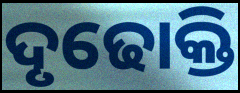
ଦୃଢୋକ୍ତି